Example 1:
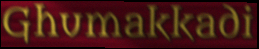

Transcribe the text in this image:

Ghumakkadi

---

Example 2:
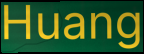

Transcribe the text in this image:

Huang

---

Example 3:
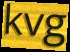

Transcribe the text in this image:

kvg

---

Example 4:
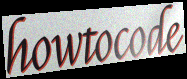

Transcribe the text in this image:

howtocode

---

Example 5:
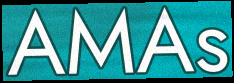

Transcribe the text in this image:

AMAs